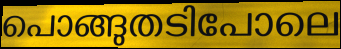
പൊങ്ങുതടിപോലെ